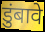
डुंबावे